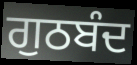
ਗੁਠਬੰਦ